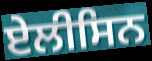
ਏਲੀਸਿਨ